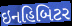
ઇનહિબિટર